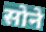
सोने